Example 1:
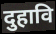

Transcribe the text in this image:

दुहावि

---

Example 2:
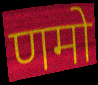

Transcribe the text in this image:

णमो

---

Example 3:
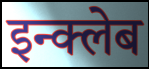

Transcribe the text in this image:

इन्क्लेब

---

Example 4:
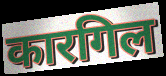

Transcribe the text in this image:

कारगिल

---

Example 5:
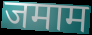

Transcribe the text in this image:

जमाम